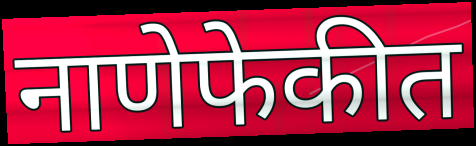
नाणेफेकीत